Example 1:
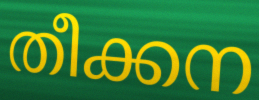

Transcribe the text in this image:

തീക്കന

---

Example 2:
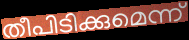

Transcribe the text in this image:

തീപിടിക്കുമെന്ന്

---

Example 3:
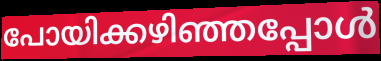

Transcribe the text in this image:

പോയിക്കഴിഞ്ഞപ്പോൾ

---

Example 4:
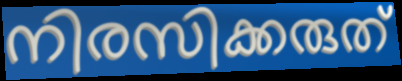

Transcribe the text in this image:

നിരസിക്കരുത്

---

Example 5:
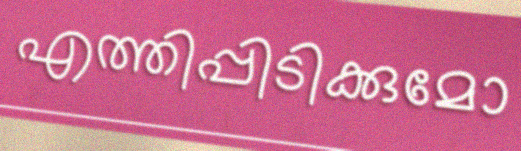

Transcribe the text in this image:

എത്തിപ്പിടിക്കുമോ